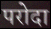
परोदा